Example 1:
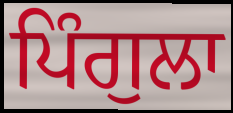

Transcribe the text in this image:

ਪਿੰਗੁਲਾ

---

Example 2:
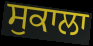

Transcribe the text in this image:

ਸੁਕਾਲਾ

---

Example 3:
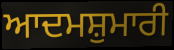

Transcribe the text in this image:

ਆਦਮਸ਼ੁਮਾਰੀ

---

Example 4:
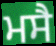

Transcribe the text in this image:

ਮਸੈ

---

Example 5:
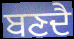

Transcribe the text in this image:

ਬਣਦੈ